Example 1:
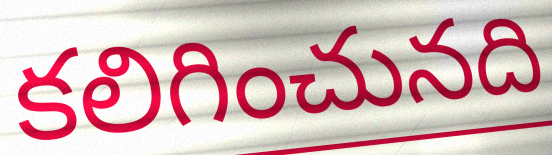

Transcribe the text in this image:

కలిగించునది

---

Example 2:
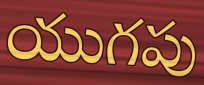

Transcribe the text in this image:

యుగపు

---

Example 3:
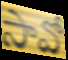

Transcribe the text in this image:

సావో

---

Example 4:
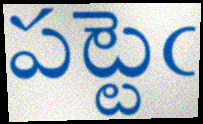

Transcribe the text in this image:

పట్టెఁ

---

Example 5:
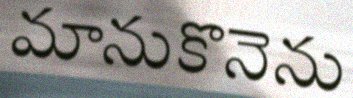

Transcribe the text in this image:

మానుకొనెను